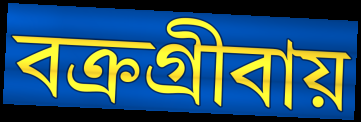
বক্রগ্রীবায়